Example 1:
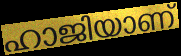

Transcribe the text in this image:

ഹാജിയാണ്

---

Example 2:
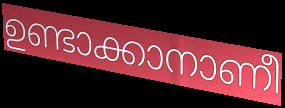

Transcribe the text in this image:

ഉണ്ടാക്കാനാണീ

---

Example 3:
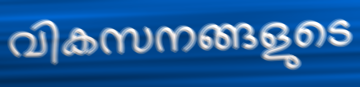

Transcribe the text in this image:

വികസനങ്ങളുടെ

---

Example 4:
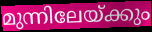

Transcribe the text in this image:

മുന്നിലേയ്ക്കും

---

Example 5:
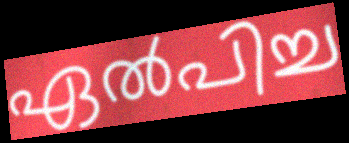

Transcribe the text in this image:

ഏൽപിച്ച